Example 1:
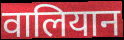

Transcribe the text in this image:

वालियान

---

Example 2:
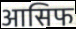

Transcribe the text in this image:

आसिफ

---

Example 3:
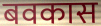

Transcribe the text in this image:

बवकास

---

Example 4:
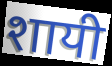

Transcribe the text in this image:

शायी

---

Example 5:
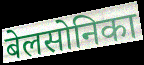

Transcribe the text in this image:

बेलसोनिका